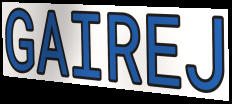
GAIREJ